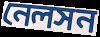
নেলসন